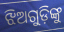
ଝିଅଗୁଡ଼ିଙ୍କୁ